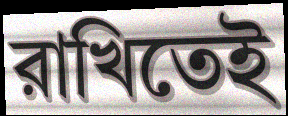
রাখিতেই